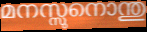
മനസ്സുനൊന്തു